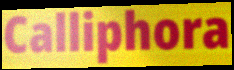
Calliphora